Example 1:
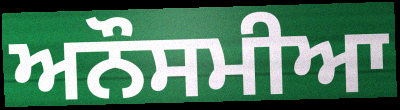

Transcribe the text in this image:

ਅਨੌਸਮੀਆ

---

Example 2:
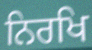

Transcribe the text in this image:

ਨਿਰਖਿ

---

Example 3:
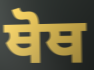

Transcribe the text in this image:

ਥੋਥ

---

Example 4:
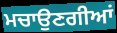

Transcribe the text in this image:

ਮਚਾਉਣਗੀਆਂ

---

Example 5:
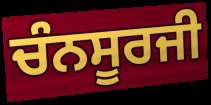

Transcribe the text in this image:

ਚੰਨਸੂਰਜੀ